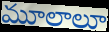
మూలాలూ